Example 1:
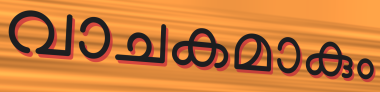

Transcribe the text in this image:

വാചകമാകും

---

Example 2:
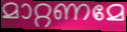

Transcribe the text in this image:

മാറ്റണമേ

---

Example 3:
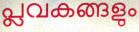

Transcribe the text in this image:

പ്ലവകങ്ങളും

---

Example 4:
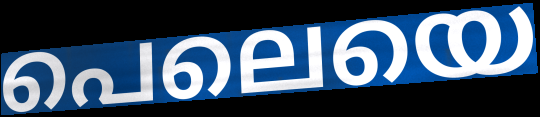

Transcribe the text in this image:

പെലെയെ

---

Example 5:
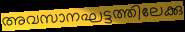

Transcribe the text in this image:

അവസാനഘട്ടത്തിലേക്കു